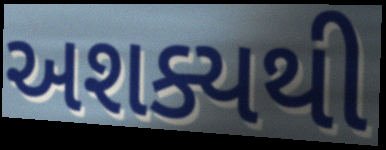
અશક્યથી